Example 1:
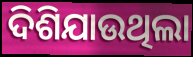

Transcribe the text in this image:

ଦିଶିଯାଉଥିଲା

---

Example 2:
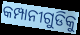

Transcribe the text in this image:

କମ୍ପାନୀଗୁଡିକୁ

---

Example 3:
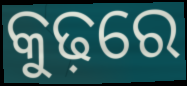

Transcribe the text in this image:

କୁଢ଼ରେ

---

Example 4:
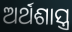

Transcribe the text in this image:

ଅର୍ଥଶାସ୍ତ୍ର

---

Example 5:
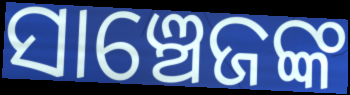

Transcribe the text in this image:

ସାଞ୍ଚେଜଙ୍କ